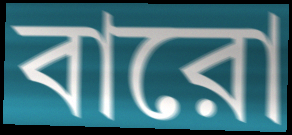
বারো